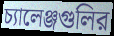
চ্যালেঞ্জগুলির